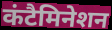
कंटैमिनेशन